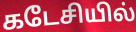
கடேசியில்